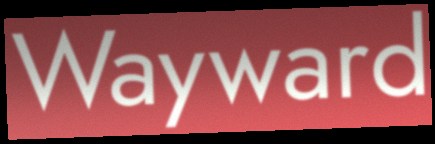
Wayward